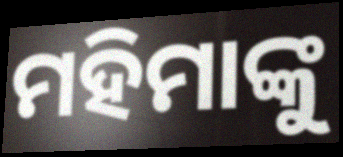
ମହିମାଙ୍କୁ